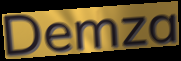
Demza